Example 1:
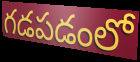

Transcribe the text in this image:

గడపడంలో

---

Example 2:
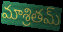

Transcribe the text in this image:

మాశ్రితమ్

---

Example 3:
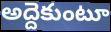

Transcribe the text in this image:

అద్దెకుంటూ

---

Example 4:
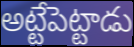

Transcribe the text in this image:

అట్టేపెట్టాడు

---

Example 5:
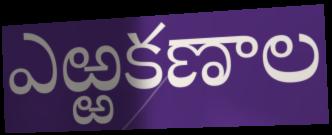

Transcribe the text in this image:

ఎఱ్ఱకణాల